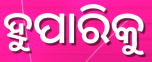
ହୁପାରିକୁ